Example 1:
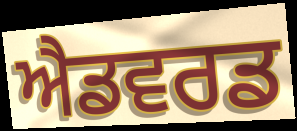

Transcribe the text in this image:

ਐਡਵਰਡ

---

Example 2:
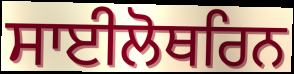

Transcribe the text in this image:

ਸਾਈਲੋਥਰਿਨ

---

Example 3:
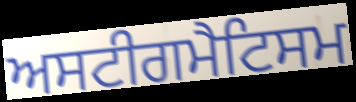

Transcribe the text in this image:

ਅਸਟੀਗਮੈਟਿਸਮ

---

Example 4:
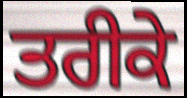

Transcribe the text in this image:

ਤਰੀਕੇ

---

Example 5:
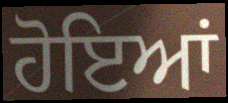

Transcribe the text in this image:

ਹੋਇਆਂ